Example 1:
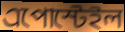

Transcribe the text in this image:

এপোস্টেইল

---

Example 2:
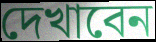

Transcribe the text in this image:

দেখাবেন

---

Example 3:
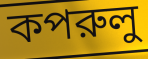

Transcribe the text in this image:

কপরুলু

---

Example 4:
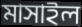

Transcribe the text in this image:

মাসাইল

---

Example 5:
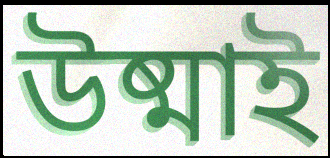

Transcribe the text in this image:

উষ্মাই